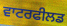
ਵਾਟਰਫੀਲਡ